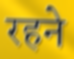
रहने